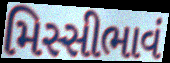
મિસ્સીભાવં